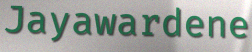
Jayawardene